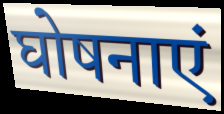
घोषनाएं